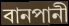
বানপানী